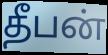
தீபன்